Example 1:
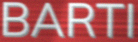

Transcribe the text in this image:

BARTI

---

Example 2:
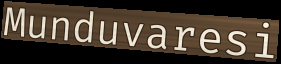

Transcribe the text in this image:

Munduvaresi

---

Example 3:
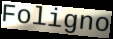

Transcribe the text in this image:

Foligno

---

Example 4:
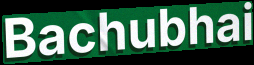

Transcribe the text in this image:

Bachubhai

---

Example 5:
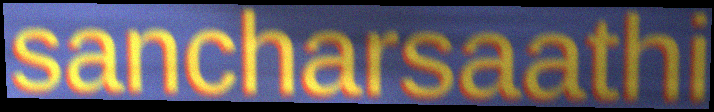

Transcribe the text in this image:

sancharsaathi